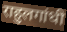
राहुलगांधी